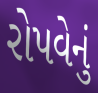
રોપવેનું